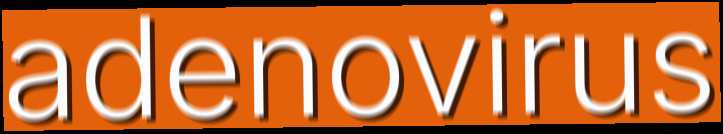
adenovirus